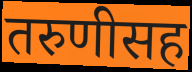
तरुणीसह